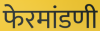
फेरमांडणी